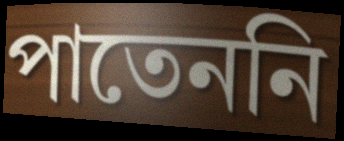
পাতেননি